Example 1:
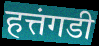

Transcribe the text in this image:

हत्तंगडी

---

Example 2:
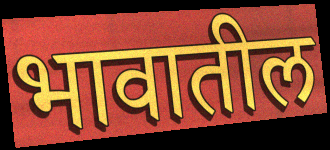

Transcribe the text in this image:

भावातील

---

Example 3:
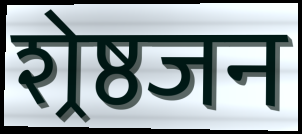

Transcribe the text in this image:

श्रेष्ठजन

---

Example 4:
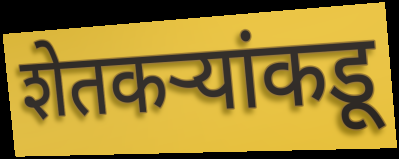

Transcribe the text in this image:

शेतकऱ्यांकडू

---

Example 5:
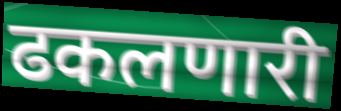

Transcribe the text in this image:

ढकलणारी